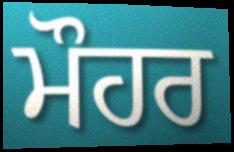
ਮੌਹਰ